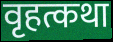
वृहत्कथा